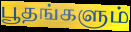
பூதங்களும்